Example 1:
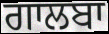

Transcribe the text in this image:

ਗਾਲਬਾ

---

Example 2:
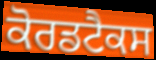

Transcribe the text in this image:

ਕੋਰਡਟੈਕਸ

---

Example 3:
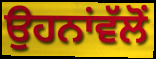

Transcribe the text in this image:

ਉਹਨਾਂਵੱਲੋਂ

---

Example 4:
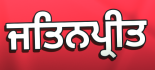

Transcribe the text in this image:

ਜਤਿਨਪ੍ਰੀਤ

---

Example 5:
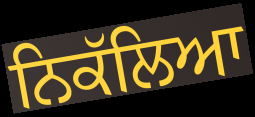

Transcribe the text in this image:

ਨਿਕੱਲਿਆ